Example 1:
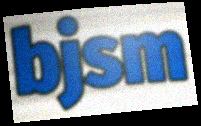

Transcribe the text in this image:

bjsm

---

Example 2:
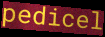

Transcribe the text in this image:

pedicel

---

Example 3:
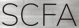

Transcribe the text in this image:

SCFA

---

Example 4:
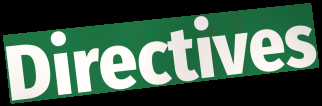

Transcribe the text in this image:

Directives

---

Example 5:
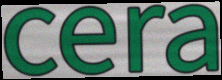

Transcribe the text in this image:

cera